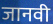
जानवी